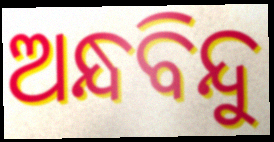
ଅନ୍ଧବିନ୍ଦୁ